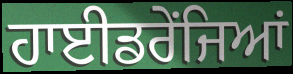
ਹਾਈਡਰੇਂਜਿਆਂ